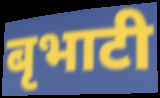
बृभाटी